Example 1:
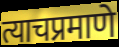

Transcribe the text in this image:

त्याचप्रमाणे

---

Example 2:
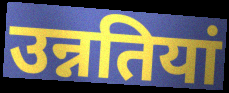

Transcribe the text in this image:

उन्नतियां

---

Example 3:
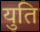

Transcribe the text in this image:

युति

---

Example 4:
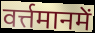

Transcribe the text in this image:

वर्त्तमानमें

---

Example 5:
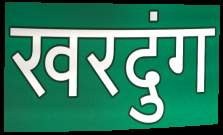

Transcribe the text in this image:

खरदुंग